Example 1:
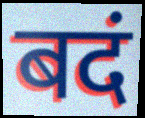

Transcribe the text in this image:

बदं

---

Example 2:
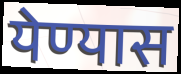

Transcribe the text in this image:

येण्यास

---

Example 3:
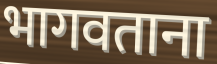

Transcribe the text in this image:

भागवताना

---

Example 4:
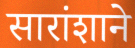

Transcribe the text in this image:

सारांशाने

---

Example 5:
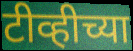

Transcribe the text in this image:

टीव्हीच्या